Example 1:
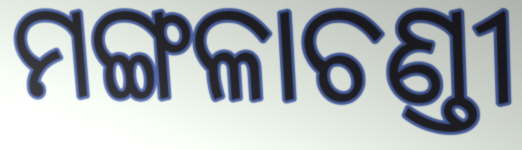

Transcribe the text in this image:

ମଙ୍ଗଳାଚଣ୍ଡୀ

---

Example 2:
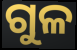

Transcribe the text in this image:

ଗୁଳ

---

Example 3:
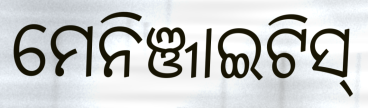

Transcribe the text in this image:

ମେନିଞ୍ଜାଇଟିସ୍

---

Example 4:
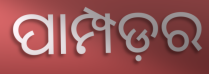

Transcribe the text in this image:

ପାମ୍ପଡ଼ର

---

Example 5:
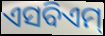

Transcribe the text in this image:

ଏସବିଏମ୍